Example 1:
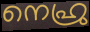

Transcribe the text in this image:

നെഹ്രു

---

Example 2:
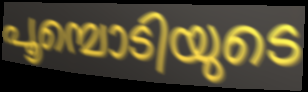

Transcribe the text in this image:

പൂമ്പൊടിയുടെ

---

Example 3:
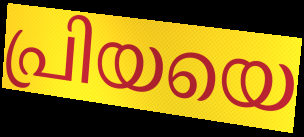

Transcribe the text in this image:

പ്രിയയെ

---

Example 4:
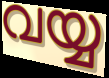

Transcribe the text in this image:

വയ്യ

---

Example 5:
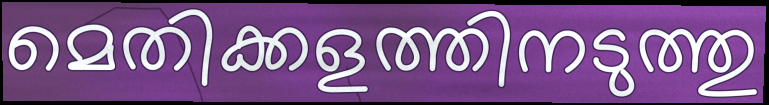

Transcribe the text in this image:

മെതിക്കളത്തിനടുത്തു